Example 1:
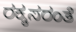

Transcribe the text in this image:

ರಕ್ಕಸರಂತೆ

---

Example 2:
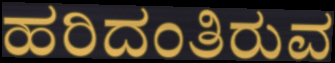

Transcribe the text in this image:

ಹರಿದಂತಿರುವ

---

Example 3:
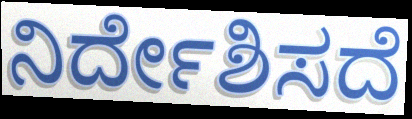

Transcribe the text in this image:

ನಿರ್ದೇಶಿಸದೆ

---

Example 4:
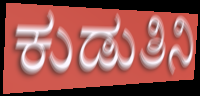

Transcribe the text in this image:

ಕುಡುತಿನಿ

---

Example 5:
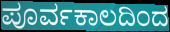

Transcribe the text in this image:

ಪೂರ್ವಕಾಲದಿಂದ